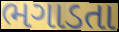
ભગાડતા